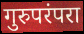
गुरुपरंपरा